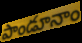
పాండూనాం